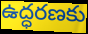
ఉద్ధరణకు